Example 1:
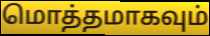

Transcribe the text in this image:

மொத்தமாகவும்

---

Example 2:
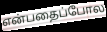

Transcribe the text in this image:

என்பதைப்போல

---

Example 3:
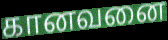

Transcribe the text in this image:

கானவனை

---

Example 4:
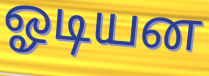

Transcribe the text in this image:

ஓடியன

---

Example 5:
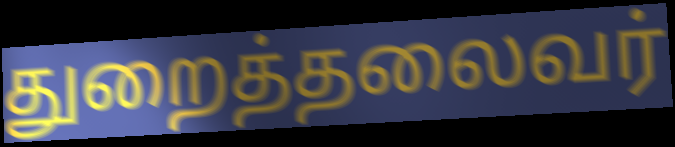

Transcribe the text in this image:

துறைத்தலைவர்